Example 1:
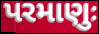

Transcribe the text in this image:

પરમાણુઃ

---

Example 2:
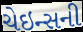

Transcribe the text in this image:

ચેઇન્સની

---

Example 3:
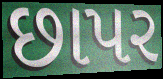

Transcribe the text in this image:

છાપર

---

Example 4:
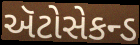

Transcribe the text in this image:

ઍટોસેકન્ડ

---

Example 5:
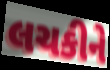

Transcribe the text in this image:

લચકીને